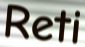
Reti